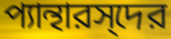
প্যান্থারস্‌দের